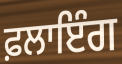
ਫ਼ਲਾਇੰਗ